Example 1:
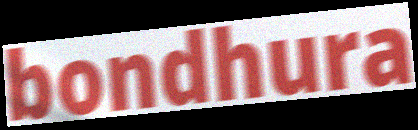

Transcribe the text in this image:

bondhura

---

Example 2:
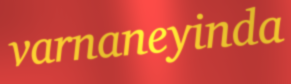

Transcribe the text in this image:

varnaneyinda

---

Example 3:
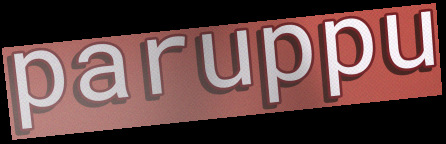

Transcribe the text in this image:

paruppu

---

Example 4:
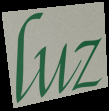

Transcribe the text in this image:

luz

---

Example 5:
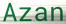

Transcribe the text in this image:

Azan